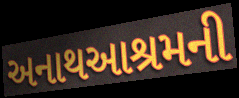
અનાથઆશ્રમની